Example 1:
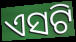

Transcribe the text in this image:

ଏସଟି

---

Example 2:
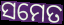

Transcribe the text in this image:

ସମେତ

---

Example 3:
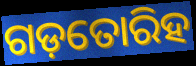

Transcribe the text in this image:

ଗଡ଼ତୋରିହ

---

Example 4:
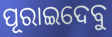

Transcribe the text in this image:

ପୂରାଇଦେବୁ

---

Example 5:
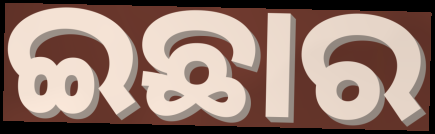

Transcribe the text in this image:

ଇଛାର